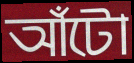
আঁটো